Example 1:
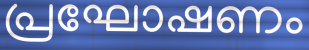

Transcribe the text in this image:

പ്രഘോഷണം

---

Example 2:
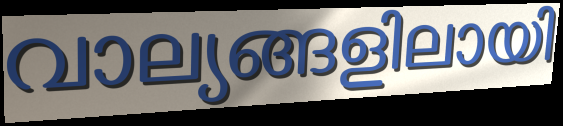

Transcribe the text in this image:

വാല്യങ്ങളിലായി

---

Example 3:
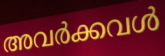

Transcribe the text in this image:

അവർക്കവൾ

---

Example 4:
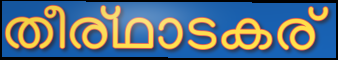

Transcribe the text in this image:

തീര്ഥാടകര്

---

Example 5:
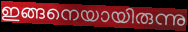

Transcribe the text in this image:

ഇങ്ങനെയായിരുന്നു